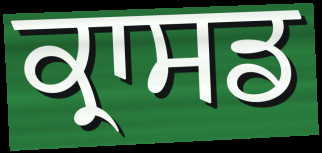
ਕ੍ਰਾਸਡ